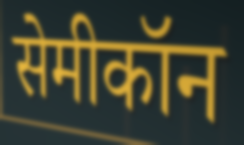
सेमीकॉन